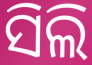
ସିଲି